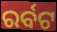
ରର୍ବଟ